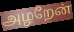
அழறேன்